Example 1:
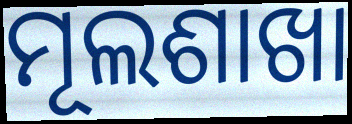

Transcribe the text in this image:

ମୂଲଶାଖା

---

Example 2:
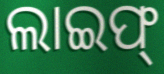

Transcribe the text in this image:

ଲାଇଫ୍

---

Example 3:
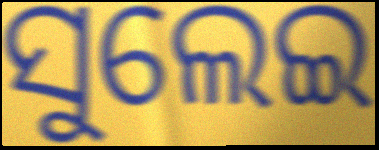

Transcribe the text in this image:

ସୁଲେଇ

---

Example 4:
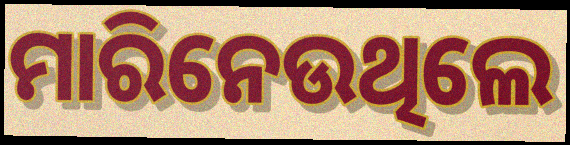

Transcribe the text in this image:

ମାରିନେଉଥିଲେ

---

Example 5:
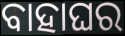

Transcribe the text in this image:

ବାହାଘର